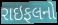
રાઇફલનો